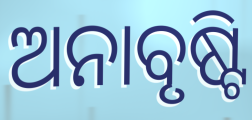
ଅନାବୃଷ୍ଟି